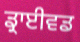
ਡ੍ਰਾਈਵਡ